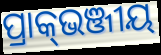
ପ୍ରାକ୍‌ଭଞ୍ଜୀୟ